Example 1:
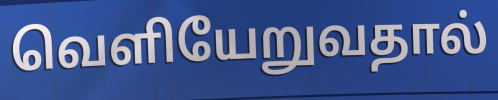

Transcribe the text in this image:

வெளியேறுவதால்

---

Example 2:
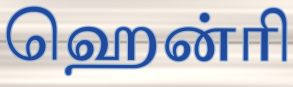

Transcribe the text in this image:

ஹென்ரி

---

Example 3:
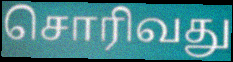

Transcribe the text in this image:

சொரிவது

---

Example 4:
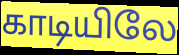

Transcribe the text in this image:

காடியிலே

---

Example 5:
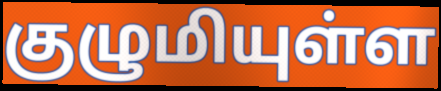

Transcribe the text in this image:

குழுமியுள்ள